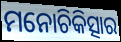
ମନୋଚିକିତ୍ସାର